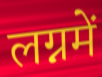
लग्नमें